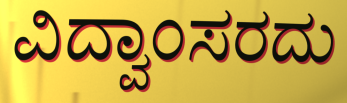
ವಿದ್ವಾಂಸರದು